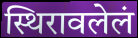
स्थिरावलेलं